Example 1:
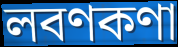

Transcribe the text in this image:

লবণকণা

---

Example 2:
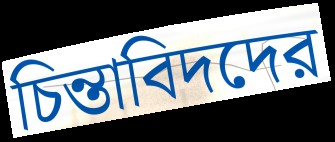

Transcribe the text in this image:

চিন্তাবিদদের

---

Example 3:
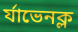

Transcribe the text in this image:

র্যাভেনক্ল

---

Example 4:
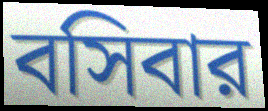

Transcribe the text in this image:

বসিবার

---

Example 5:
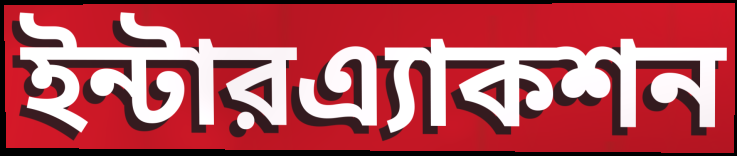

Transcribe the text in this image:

ইন্টারএ্যাকশন